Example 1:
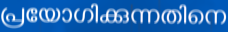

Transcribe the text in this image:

പ്രയോഗിക്കുന്നതിനെ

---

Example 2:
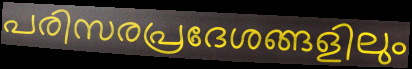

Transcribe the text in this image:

പരിസരപ്രദേശങ്ങളിലും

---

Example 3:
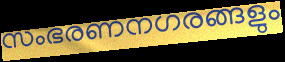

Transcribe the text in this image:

സംഭരണനഗരങ്ങളും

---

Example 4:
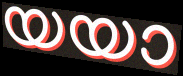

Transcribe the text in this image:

യയാ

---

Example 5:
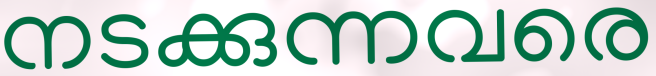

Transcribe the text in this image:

നടക്കുന്നവരെ